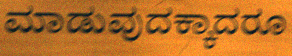
ಮಾಡುವುದಕ್ಕಾದರೂ